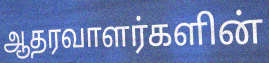
ஆதரவாளர்களின்